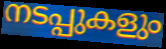
നടപ്പുകളും